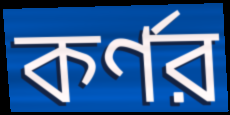
কর্ণর